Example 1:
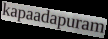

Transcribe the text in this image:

kapaadapuram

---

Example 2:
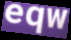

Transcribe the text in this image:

eqw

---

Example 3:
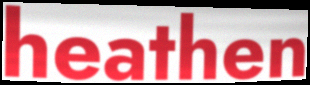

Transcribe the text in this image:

heathen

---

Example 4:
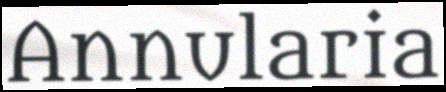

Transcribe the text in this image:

Annularia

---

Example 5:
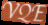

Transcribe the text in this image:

VQE